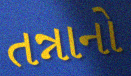
તન્નાનો